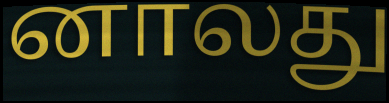
னாலது